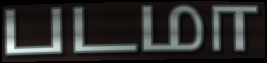
படமா